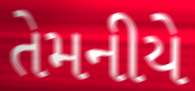
તેમનીયે